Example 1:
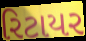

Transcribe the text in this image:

રિટાયર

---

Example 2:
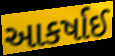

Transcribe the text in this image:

આકર્ષાઈ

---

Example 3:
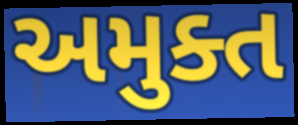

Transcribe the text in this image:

અમુક્ત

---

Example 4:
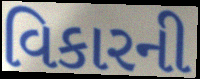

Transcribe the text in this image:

વિકારની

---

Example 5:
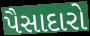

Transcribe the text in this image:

પૈસાદારો